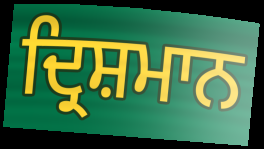
ਦ੍ਰਿਸ਼ਮਾਨ